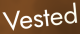
Vested